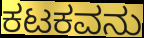
ಕಟಕವನು